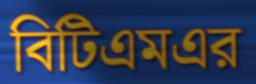
বিটিএমএর